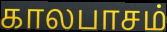
காலபாசம்